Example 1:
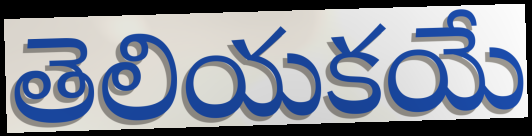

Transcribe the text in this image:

తెలియకయే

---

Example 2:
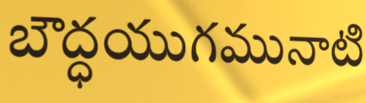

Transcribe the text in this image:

బౌద్ధయుగమునాటి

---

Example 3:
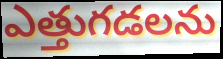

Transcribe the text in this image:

ఎత్తుగడలను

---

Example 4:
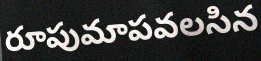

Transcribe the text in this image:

రూపుమాపవలసిన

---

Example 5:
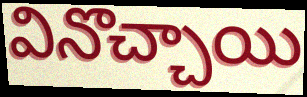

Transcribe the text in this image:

వినొచ్చాయి